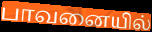
பாவனையில்